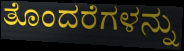
ತೊಂದರೆಗಳನ್ನು